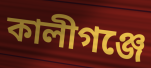
কালীগঞ্জে